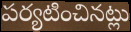
పర్యటించినట్లు